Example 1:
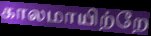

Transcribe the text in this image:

காலமாயிற்றே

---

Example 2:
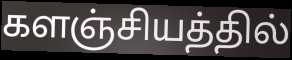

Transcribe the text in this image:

களஞ்சியத்தில்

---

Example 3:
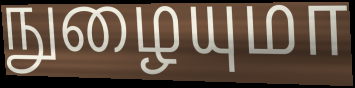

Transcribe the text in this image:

நுழையுமா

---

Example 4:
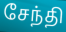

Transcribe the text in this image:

சேந்தி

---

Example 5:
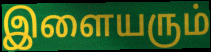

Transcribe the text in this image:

இளையரும்